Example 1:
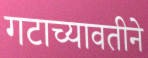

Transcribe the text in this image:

गटाच्यावतीने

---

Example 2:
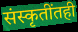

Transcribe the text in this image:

संस्कृतींतही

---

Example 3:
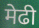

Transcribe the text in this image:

मेढी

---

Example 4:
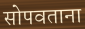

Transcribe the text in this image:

सोपवताना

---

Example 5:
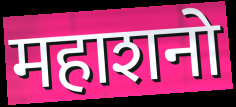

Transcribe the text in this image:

महाशनो